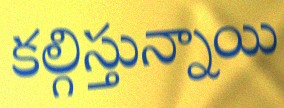
కల్గిస్తున్నాయి